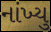
નાંખ્યુ